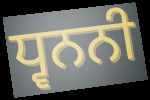
ਧ੍ਵਨਨੀ